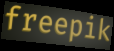
freepik